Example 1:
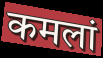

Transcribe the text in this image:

कमलां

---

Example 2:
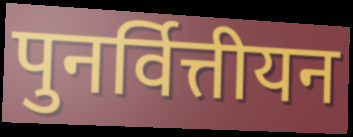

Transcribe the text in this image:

पुनर्वित्तीयन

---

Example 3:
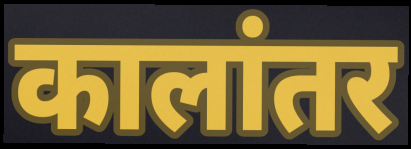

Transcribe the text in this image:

कालांतर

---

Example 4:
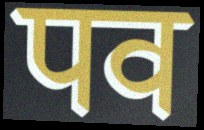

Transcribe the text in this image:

पव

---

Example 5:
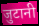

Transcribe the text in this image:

जुटानी